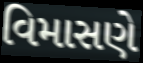
વિમાસણે